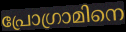
പ്രോഗ്രാമിനെ